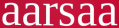
aarsaa